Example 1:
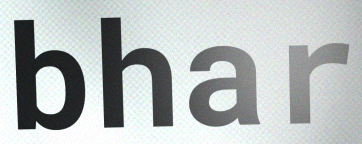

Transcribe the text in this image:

bhar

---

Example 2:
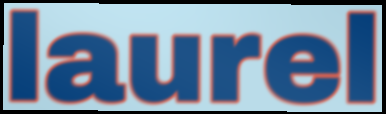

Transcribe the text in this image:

laurel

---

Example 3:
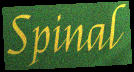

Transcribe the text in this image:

Spinal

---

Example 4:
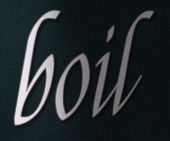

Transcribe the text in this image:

boil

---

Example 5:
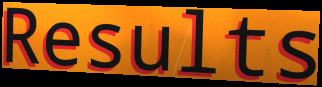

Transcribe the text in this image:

Results